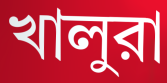
খালুরা